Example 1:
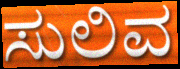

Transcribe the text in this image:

ಸುಲಿವ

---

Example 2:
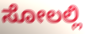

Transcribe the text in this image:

ಸೋಲಲ್ಲಿ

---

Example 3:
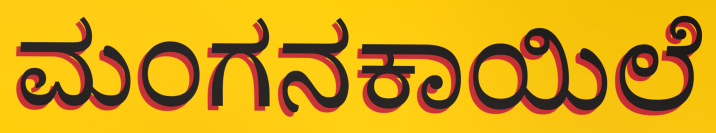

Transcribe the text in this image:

ಮಂಗನಕಾಯಿಲೆ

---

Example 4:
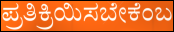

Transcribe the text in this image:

ಪ್ರತಿಕ್ರಿಯಿಸಬೇಕೆಂಬ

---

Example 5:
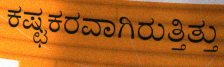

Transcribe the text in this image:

ಕಷ್ಟಕರವಾಗಿರುತ್ತಿತ್ತು